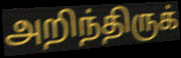
அறிந்திருக்